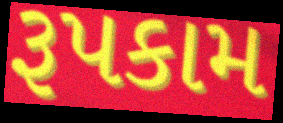
રૂપકામ